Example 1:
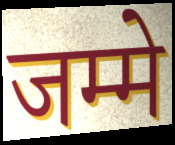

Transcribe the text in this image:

जम्मे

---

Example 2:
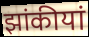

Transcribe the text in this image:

झांकीयां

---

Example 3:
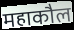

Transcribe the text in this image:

महाकौल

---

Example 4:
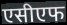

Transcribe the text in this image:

एसीएफ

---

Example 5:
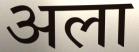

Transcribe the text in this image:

अला